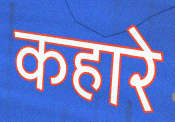
कहारे